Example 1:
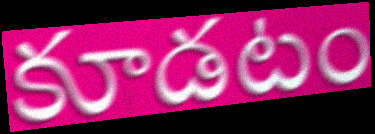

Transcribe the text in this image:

కూడటం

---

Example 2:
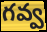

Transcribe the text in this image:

గవ్వ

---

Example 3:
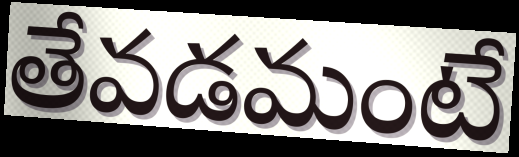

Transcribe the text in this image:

తేవడమంటే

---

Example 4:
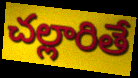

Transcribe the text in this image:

చల్లారితే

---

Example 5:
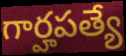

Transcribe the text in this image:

గార్హపత్యే